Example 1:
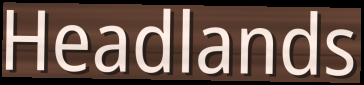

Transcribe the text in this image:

Headlands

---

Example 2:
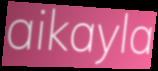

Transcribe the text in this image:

aikayla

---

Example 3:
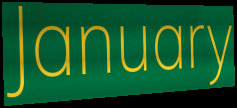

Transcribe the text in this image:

January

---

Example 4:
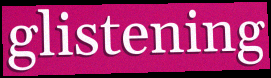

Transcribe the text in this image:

glistening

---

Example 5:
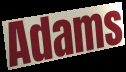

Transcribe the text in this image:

Adams